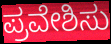
ಪ್ರವೇಶಿಸು